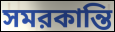
সমরকান্তি